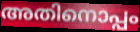
അതിനൊപ്പം